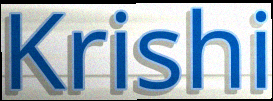
Krishi